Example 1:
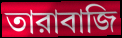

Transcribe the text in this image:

তারাবাজি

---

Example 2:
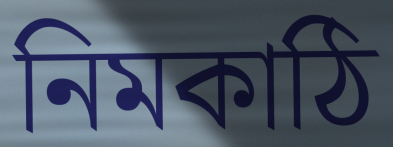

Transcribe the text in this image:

নিমকাঠি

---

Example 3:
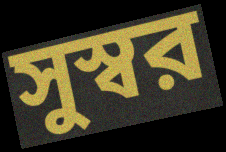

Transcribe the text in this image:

সুস্বর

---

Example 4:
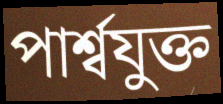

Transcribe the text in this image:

পার্শ্বযুক্ত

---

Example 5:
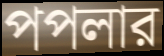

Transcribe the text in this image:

পপলার